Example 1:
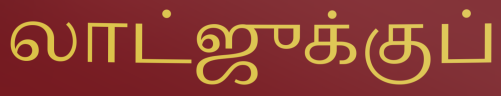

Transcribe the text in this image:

லாட்ஜுக்குப்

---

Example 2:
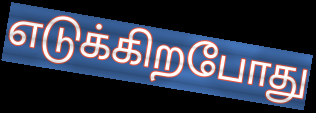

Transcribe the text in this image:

எடுக்கிறபோது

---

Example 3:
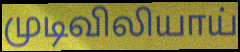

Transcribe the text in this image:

முடிவிலியாய்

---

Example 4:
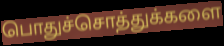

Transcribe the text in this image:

பொதுச்சொத்துக்களை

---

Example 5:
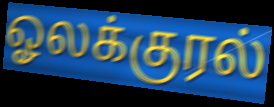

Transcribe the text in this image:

ஓலக்குரல்